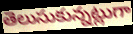
తెలుసుకున్నట్లుగా